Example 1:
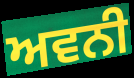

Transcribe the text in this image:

ਅਵਨੀ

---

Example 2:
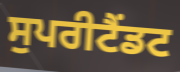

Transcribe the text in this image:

ਸੁਪਰੀਟੈਂਡਟ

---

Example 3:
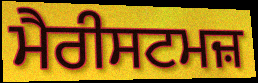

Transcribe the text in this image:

ਮੈਰੀਸਟਮਜ਼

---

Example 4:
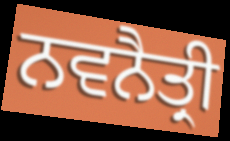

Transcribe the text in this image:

ਨਵਨੈਤ੍ਰੀ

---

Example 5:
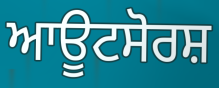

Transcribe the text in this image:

ਆਊਟਸੋਰਸ਼